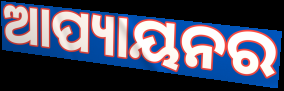
ଆପ୍ୟାୟନର